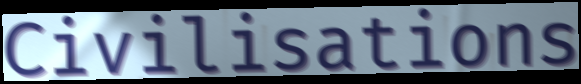
Civilisations